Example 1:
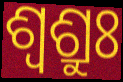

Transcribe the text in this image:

ଶ୍ଵଶ୍ରୁଃ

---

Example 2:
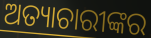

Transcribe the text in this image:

ଅତ୍ୟାଚାରୀଙ୍କର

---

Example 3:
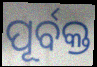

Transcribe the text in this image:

ପୂର୍ବକ୍ତ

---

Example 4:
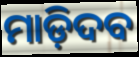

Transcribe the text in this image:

ମାଡ଼ିଦବ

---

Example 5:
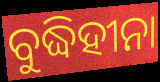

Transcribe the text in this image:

ବୁଦ୍ଧିହୀନା